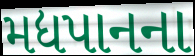
મદ્યપાનના